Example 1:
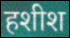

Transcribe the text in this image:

हशीश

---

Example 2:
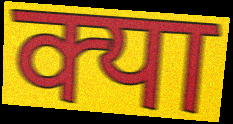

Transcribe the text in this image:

क्‍या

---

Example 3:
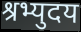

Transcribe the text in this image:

श्रभ्युदय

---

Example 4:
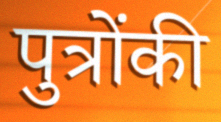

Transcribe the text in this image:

पुत्रोंकी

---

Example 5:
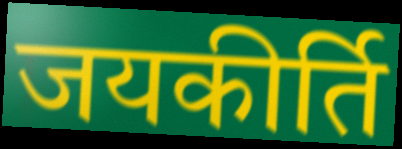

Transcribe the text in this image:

जयकीर्ति